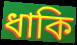
ধাকি